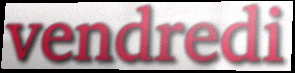
vendredi